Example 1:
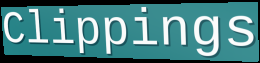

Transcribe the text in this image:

Clippings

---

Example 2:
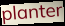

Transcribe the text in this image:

planter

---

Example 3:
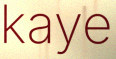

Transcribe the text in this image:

kaye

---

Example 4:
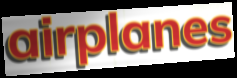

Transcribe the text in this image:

airplanes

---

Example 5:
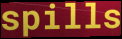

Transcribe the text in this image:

spills